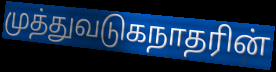
முத்துவடுகநாதரின்